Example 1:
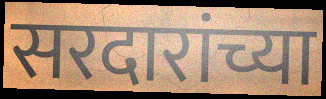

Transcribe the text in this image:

सरदारांच्या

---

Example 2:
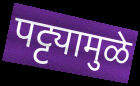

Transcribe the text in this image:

पट्ट्यामुळे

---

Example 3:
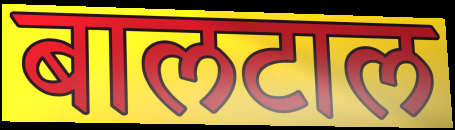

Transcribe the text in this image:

बालटाल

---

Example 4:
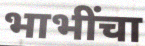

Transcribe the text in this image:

भाभींचा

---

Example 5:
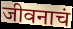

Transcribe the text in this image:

जीवनाचं